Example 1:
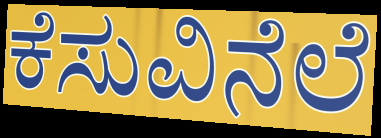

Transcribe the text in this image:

ಕೆಸುವಿನೆಲೆ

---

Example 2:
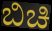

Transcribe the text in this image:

ಬಿಚಿ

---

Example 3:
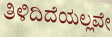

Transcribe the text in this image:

ತಿಳಿದಿದೆಯಲ್ಲವೇ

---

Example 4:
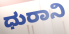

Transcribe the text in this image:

ಧುರಾನಿ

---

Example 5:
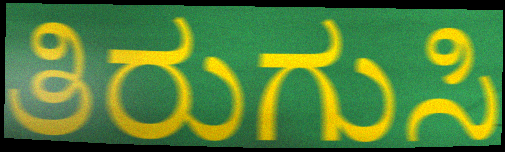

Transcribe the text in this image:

ತಿರುಗುಸಿ